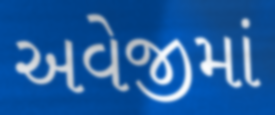
અવેજીમાં